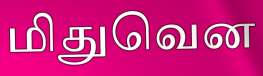
மிதுவென